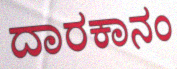
ದಾರಕಾನಂ